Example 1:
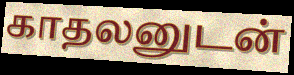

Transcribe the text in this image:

காதலனுடன்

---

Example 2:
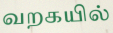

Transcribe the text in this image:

வறகயில்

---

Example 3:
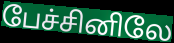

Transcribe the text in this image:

பேச்சினிலே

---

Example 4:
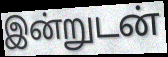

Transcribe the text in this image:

இன்றுடன்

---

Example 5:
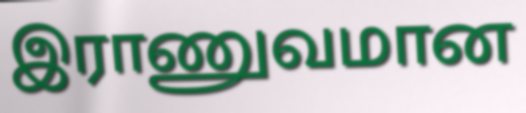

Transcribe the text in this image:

இராணுவமான